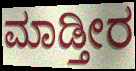
ಮಾಡ್ತೀರ